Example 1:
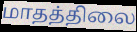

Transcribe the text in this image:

மாதத்திலை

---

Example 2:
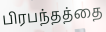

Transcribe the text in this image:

பிரபந்தத்தை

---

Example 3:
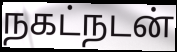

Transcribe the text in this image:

நகட்நடன்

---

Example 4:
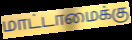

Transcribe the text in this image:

மாட்டாமைக்கு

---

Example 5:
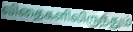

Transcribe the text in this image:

விதைகளிலிருந்தும்